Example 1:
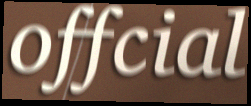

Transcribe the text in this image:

offcial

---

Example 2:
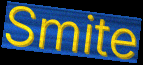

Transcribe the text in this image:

Smite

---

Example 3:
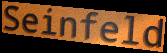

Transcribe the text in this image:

Seinfeld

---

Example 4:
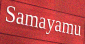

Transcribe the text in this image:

Samayamu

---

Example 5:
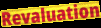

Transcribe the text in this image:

Revaluation